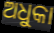
ଅଧୁକା